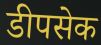
डीपसेक